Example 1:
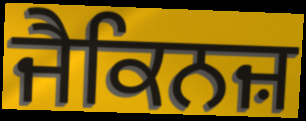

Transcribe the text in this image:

ਜੈਕਿਨਜ਼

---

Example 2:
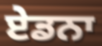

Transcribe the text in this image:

ਏਡਨਾ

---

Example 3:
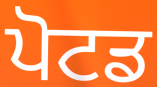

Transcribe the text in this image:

ਪੋਟਡ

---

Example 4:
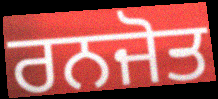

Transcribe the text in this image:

ਰਨਜੋਤ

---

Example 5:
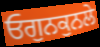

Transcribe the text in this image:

ਓਗੁਨਕੁਨਲੇ